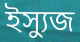
ইস্যুজ